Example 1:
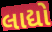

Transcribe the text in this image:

લાદ્યો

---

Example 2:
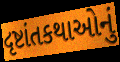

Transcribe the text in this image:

દૃષ્ટાંતકથાઓનું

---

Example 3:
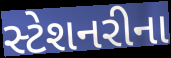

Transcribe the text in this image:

સ્ટેશનરીના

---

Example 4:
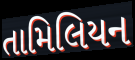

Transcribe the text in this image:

તામિલિયન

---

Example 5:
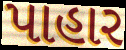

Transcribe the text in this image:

પાહાર